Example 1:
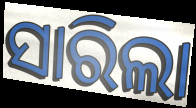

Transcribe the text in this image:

ସାରିଲା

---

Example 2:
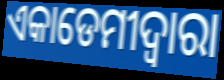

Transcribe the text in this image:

ଏକାଡେମୀଦ୍ୱାରା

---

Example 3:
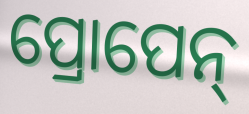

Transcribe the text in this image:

ପ୍ରୋପେନ୍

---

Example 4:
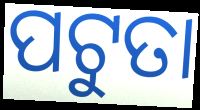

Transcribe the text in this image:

ପଟୁତା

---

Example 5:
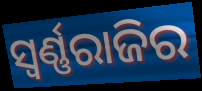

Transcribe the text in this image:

ସ୍ଵର୍ଣ୍ଣରାଜିର